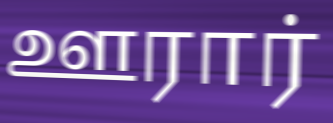
ஊரார்